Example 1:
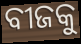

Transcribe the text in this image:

ବୀଜକୁ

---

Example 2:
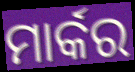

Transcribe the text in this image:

ମାର୍କର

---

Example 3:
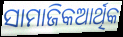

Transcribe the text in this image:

ସାମାଜିକଆର୍ଥିକ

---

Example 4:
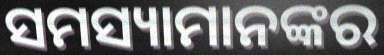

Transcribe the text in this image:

ସମସ୍ୟାମାନଙ୍କର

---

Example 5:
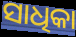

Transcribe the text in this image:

ସାଧିକା